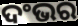
ଦଂଭର